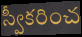
స్వీకరించ